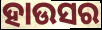
ହାଉସର